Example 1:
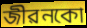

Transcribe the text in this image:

জীৱনকো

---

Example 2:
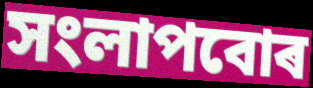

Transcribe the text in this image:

সংলাপবোৰ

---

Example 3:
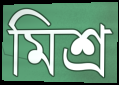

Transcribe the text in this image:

মিশ্ৰ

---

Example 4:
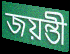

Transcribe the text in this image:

জয়ন্তী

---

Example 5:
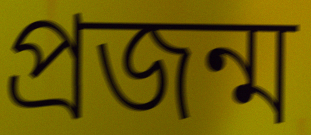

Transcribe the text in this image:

প্ৰজন্ম